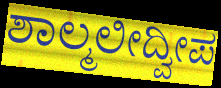
ಶಾಲ್ಮಲೀದ್ವೀಪ